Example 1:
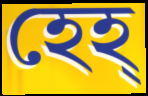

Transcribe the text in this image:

হেহ্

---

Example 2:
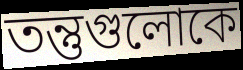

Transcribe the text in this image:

তন্তুগুলোকে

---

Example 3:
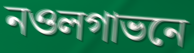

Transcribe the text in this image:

নওলগাভনে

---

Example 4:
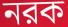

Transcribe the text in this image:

নরক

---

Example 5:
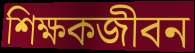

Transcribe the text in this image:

শিক্ষকজীবন